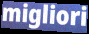
migliori